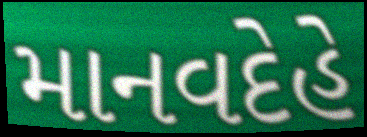
માનવદેહે